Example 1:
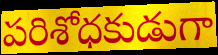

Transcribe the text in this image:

పరిశోధకుడుగా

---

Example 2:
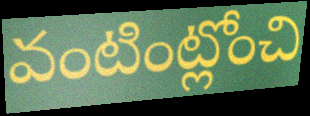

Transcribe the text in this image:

వంటింట్లోంచి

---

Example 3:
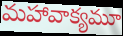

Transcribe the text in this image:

మహావాక్యమూ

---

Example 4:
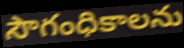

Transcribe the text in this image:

సౌగంధికాలను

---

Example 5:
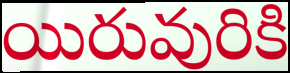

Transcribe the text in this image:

యిరువురికి